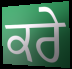
ਕਰੇ